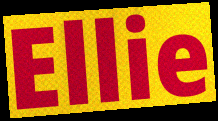
Ellie